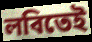
লবিতেই